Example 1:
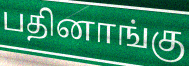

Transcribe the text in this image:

பதினாங்கு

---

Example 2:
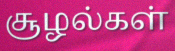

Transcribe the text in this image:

சூழல்கள்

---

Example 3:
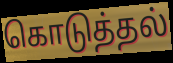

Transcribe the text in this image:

கொடுத்தல்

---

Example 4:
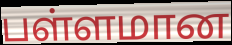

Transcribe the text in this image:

பள்ளமான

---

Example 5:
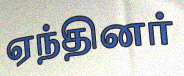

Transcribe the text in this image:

ஏந்தினர்